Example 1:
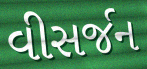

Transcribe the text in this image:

વીસર્જન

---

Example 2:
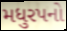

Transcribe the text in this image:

મધુરપનો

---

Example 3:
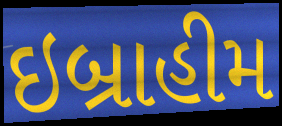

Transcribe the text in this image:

ઇબ્રાહીમ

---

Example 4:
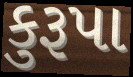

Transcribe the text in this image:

કુરૂપા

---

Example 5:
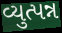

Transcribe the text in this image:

વ્યુત્પન્ન